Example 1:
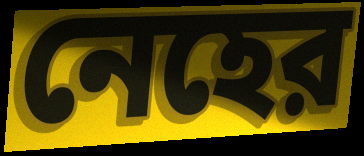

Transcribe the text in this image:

নেহের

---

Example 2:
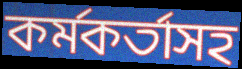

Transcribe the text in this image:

কর্মকর্তাসহ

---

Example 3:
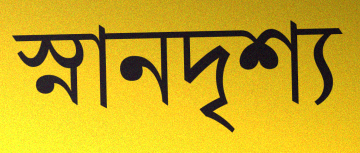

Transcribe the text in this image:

স্নানদৃশ্য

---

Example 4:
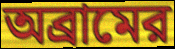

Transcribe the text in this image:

অব্রামের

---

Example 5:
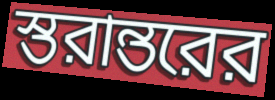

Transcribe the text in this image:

স্তরান্তরের